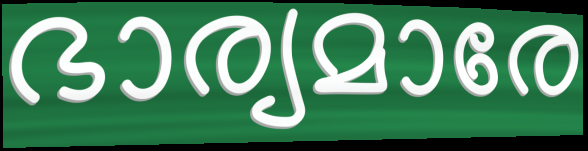
ഭാര്യമാരേ